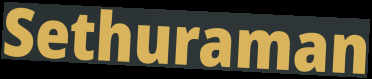
Sethuraman